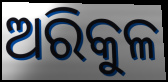
ଅରିକୁଳ